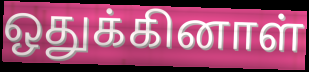
ஒதுக்கினாள்